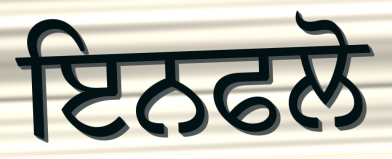
ਇਨਫਲੋ